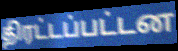
திரட்டப்பட்டன